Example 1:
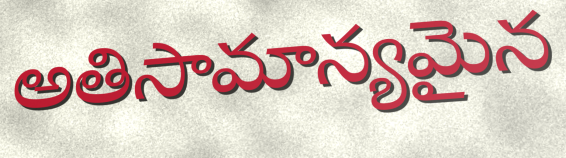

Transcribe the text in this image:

అతిసామాన్యమైన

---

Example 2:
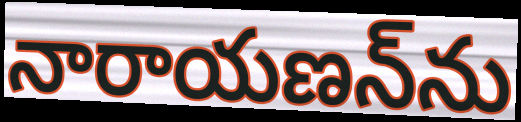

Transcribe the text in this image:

నారాయణన్‌ను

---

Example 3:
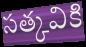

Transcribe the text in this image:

సత్కవికి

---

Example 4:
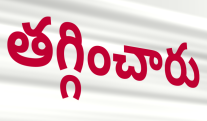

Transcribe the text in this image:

తగ్గించారు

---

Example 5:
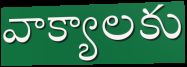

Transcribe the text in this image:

వాక్యాలకు